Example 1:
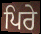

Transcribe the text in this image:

ਪਿਰੇ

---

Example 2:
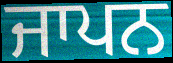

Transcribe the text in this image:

ਜਾਪਨ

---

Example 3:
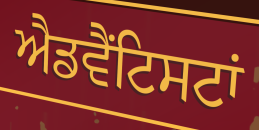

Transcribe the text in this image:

ਐਡਵੈਂਟਿਸਟਾਂ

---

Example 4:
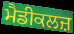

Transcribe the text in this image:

ਮੈਡੀਕਲਜ਼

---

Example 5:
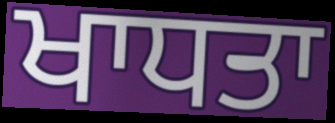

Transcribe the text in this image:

ਖਾਧਤਾ